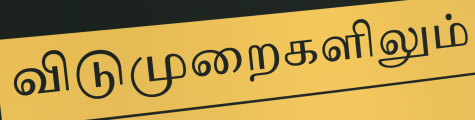
விடுமுறைகளிலும்